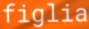
figlia